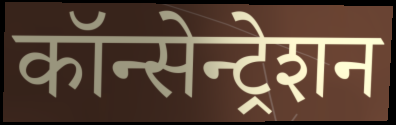
कॉन्सेन्ट्रेशन